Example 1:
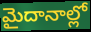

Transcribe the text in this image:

మైదానాల్లో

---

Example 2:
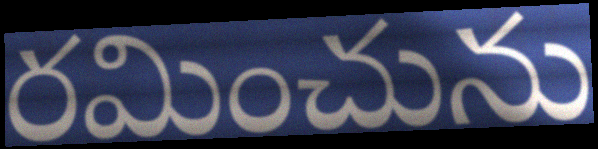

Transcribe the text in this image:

రమించును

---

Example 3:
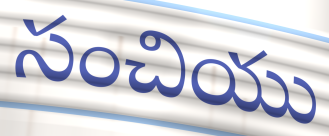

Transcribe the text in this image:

సంచియు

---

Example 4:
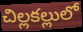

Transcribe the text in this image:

చిల్లకల్లులో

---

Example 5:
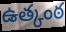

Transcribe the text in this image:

ఉత్కంఠ